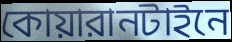
কোয়ারানটাইনে